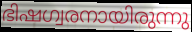
ഭിഷഗ്വരനായിരുന്നു